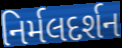
નિર્મલદર્શન